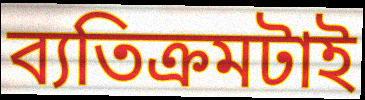
ব্যতিক্রমটাই